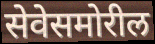
सेवेसमोरील